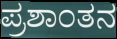
ಪ್ರಶಾಂತನ